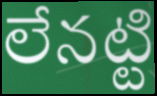
లేనట్టి